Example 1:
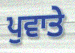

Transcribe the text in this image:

ਪੁਵਾਤੇ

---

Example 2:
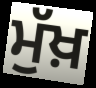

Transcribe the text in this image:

ਮੁੱਖ਼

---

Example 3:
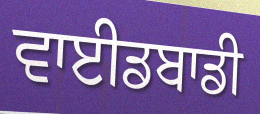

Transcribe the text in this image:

ਵਾਈਡਬਾਡੀ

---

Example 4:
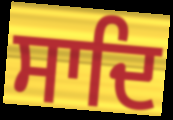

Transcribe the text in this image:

ਸਾਦਿ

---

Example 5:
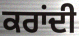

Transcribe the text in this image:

ਕਰਾਂਦੀ